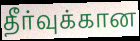
தீர்வுக்கான